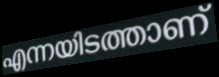
എന്നയിടത്താണ്